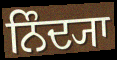
ਨਿੰਦ੍ਯਾ